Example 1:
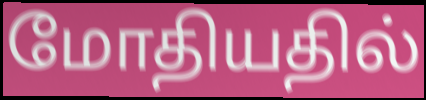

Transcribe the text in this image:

மோதியதில்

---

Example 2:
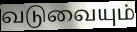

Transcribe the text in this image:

வடுவையும்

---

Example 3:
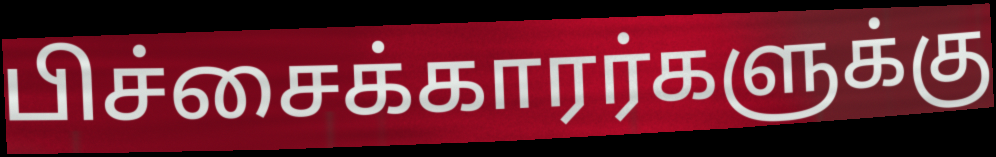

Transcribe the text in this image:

பிச்சைக்காரர்களுக்கு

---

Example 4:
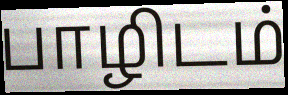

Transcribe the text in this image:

பாழிடம்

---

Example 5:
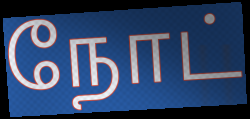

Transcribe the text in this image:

நோட்